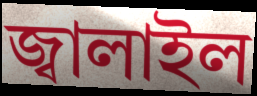
জ্বালাইল